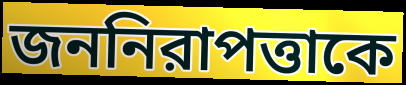
জননিরাপত্তাকে